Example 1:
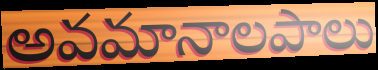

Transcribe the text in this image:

అవమానాలపాలు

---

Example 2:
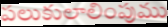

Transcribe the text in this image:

పలుకులాలింపుము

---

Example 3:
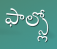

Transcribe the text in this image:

ఫాల్స్లో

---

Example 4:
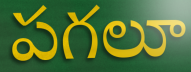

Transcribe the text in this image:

పగలూ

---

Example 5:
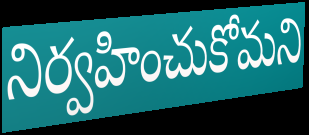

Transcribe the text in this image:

నిర్వహించుకోమని